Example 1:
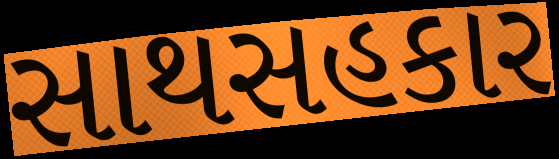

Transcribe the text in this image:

સાથસહકાર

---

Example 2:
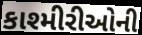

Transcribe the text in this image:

કાશ્મીરીઓની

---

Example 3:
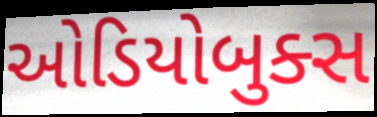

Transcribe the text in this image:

ઓડિયોબુક્સ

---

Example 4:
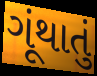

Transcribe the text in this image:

ગૂંથાતું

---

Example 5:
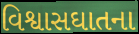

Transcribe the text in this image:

વિશ્વાસઘાતના